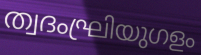
ത്വദംഘ്രിയുഗളം